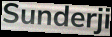
Sunderji